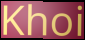
Khoi